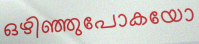
ഒഴിഞ്ഞുപോകയോ